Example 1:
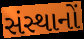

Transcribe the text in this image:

સંસ્થાનોં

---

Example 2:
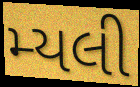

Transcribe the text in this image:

મ્યલી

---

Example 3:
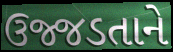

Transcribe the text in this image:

ઉજ્જડતાને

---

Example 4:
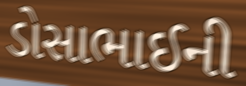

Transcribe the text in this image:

ડોસાભાઈની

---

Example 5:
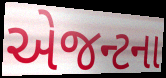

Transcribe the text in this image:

એજન્ટના